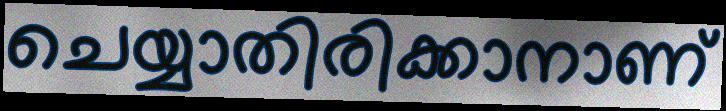
ചെയ്യാതിരിക്കാനാണ്